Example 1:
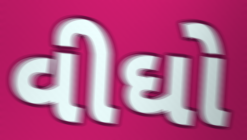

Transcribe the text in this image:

વીઘો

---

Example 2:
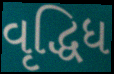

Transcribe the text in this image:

વૃદ્ધિધ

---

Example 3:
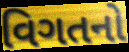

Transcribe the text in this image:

વિગતનો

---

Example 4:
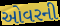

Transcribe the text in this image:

ઓવરની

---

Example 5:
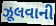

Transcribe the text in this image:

ઝૂલવાની